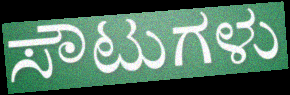
ಸೌಟುಗಳು